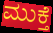
ಮುಕ್ತೆ